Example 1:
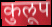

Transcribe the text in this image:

कुलूप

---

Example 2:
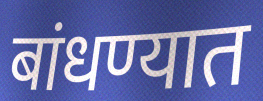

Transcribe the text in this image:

बांधण्‍यात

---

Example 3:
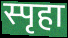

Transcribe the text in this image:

स्पृहा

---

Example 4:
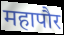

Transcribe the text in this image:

महापौर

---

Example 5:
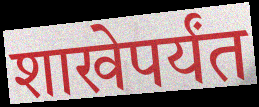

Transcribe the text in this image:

शाखेपर्यंत